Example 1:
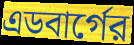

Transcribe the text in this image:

এডবার্গের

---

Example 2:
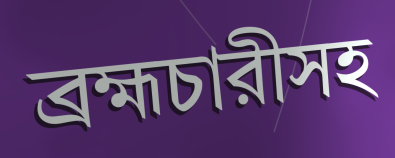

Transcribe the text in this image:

ব্রহ্মচারীসহ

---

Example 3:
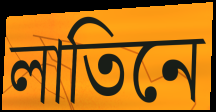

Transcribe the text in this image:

লাতিনে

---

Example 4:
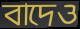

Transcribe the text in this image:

বাদেও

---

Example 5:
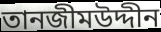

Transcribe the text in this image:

তানজীমউদ্দীন